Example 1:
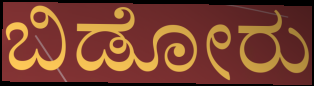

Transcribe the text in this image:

ಬಿಡೋರು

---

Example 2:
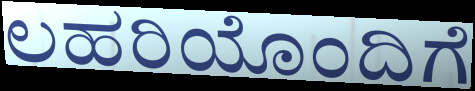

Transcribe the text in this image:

ಲಹರಿಯೊಂದಿಗೆ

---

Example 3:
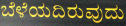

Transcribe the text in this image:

ಬೆಳೆಯದಿರುವುದು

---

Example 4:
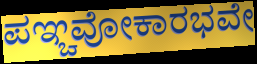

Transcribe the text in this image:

ಪಞ್ಚವೋಕಾರಭವೇ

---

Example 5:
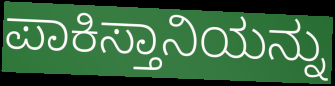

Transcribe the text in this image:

ಪಾಕಿಸ್ತಾನಿಯನ್ನು